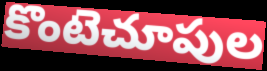
కొంటెచూపుల